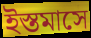
ইস্তমাসে